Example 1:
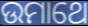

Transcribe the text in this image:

ଉମାଥେ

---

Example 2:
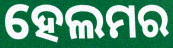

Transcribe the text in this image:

ହେଲମର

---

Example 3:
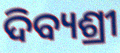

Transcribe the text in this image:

ଦିବ୍ୟଶ୍ରୀ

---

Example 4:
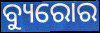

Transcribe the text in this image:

ବ୍ୟୁରୋର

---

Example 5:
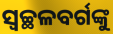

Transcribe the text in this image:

ସ୍ବଚ୍ଛଳବର୍ଗଙ୍କୁ